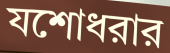
যশোধরার